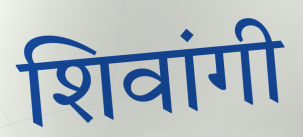
शिवांगी